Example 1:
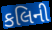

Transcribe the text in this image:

કલિની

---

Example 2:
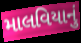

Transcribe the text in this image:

માલવિયાનું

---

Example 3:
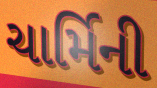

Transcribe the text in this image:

ચાર્મિની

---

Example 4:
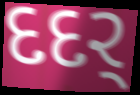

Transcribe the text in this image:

દદર્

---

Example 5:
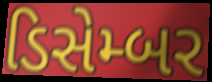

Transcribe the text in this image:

ડિસેમ્બર